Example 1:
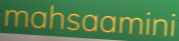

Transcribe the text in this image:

mahsaamini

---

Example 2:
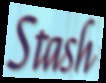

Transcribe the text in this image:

Stash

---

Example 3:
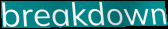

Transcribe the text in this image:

breakdown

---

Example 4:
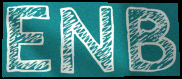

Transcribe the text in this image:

ENB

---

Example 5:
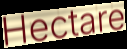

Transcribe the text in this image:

Hectare